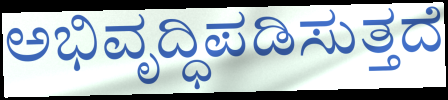
ಅಭಿವೃದ್ಧಿಪಡಿಸುತ್ತದೆ